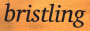
bristling